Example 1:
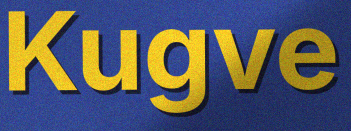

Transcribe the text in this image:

Kugve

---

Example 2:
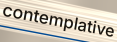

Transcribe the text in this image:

contemplative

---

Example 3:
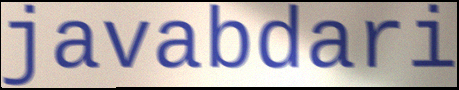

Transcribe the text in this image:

javabdari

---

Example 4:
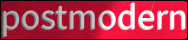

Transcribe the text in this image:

postmodern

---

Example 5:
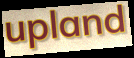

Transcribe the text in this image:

upland